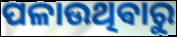
ପଳାଉଥିଵାରୁ